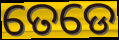
ତେଡେ